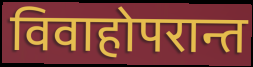
विवाहोपरान्त